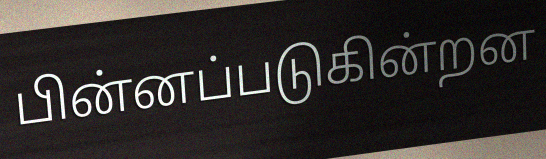
பின்னப்படுகின்றன